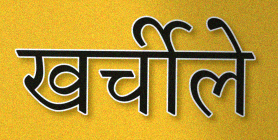
खर्चीले